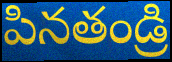
పినతండ్రి